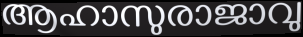
ആഹാസുരാജാവു